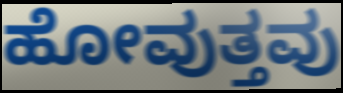
ಹೋವುತ್ತವು